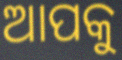
ଆପକୁ